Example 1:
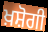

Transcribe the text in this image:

ਖ਼ਸ਼ੋਗੀ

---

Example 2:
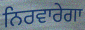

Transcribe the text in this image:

ਨਿਰਵਾਰੇਗਾ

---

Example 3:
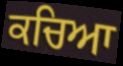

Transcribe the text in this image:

ਕਚਿਆ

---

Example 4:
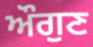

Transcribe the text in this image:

ਔਗੁਣ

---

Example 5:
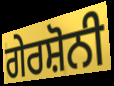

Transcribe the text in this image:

ਗੇਰਸ਼ੋਨੀ